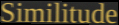
Similitude